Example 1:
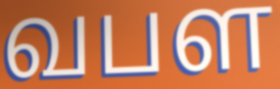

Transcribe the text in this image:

வபள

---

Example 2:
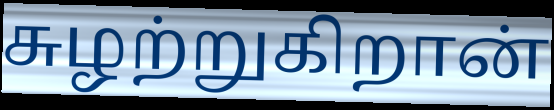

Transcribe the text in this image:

சுழற்றுகிறான்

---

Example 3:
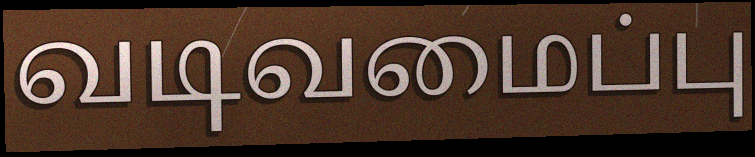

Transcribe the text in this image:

வடிவமைப்பு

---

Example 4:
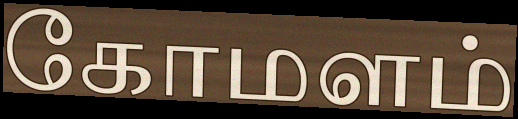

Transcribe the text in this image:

கோமளம்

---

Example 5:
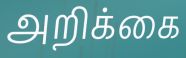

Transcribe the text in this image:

அறிக்கை